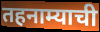
तहनाम्याची